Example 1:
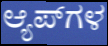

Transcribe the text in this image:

ಆ್ಯಪ್‌ಗಳ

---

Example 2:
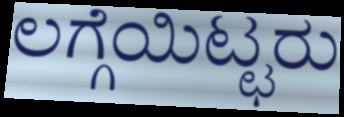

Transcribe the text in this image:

ಲಗ್ಗೆಯಿಟ್ಟರು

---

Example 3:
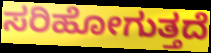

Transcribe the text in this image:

ಸರಿಹೋಗುತ್ತದೆ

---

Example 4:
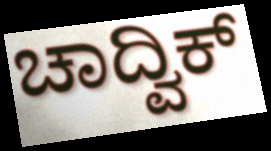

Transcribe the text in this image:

ಚಾದ್ವಿಕ್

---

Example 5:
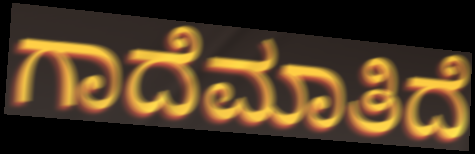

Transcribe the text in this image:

ಗಾದೆಮಾತಿದೆ